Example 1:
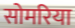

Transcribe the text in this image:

सोमरिया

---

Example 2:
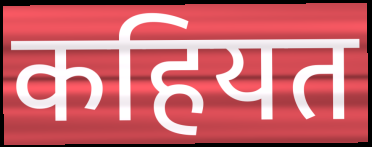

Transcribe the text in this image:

कहियत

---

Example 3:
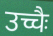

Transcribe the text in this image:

उच्चैः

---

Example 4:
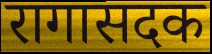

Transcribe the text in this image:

रागासदक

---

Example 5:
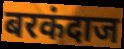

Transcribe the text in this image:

बरकंदाज